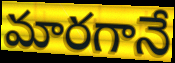
మారగానే